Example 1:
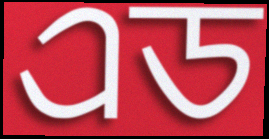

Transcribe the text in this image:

এড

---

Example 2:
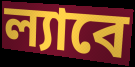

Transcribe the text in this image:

ল্যাবে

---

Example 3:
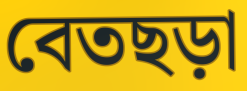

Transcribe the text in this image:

বেতছড়া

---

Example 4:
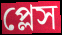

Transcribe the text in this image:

প্লেস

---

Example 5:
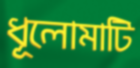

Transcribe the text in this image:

ধূলোমাটি